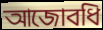
আজোবধি